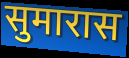
सुमारास